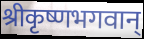
श्रीकृष्णभगवान्